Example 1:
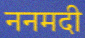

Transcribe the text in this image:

ननमदी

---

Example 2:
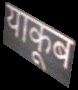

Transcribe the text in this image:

याकूब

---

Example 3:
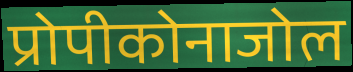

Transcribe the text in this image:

प्रोपीकोनाजोल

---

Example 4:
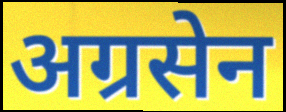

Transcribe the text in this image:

अग्रसेन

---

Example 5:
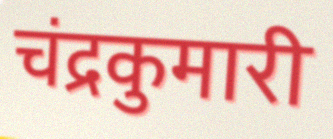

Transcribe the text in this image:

चंद्रकुमारी